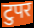
टुपर